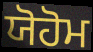
ਯੋਹੋਮ